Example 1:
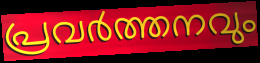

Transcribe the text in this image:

പ്രവർത്തനവും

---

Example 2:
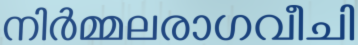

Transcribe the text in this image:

നിർമ്മലരാഗവീചി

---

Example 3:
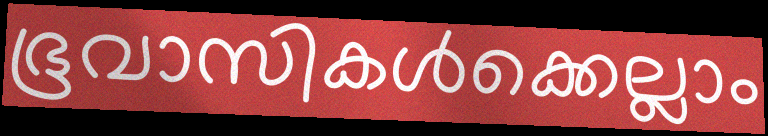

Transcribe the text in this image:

ഭൂവാസികൾക്കെല്ലാം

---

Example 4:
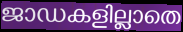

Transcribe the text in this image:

ജാഡകളില്ലാതെ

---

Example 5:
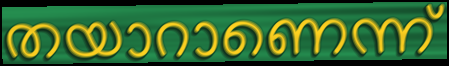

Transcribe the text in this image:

തയാറാണെന്ന്